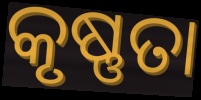
କୃଷ୍ଣତା